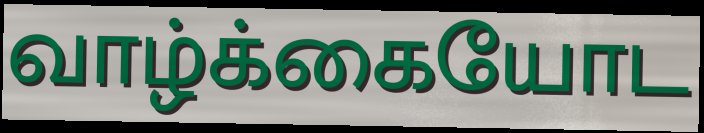
வாழ்க்கையோட